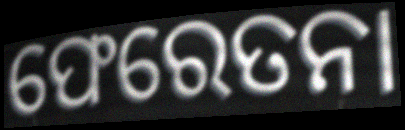
ଫେରେତନା